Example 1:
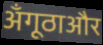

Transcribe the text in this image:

अँगूठाऔर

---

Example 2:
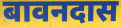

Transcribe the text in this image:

बावनदास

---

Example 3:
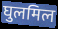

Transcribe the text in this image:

घुलमिल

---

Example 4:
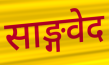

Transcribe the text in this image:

साङ्गवेद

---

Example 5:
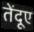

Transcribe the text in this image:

तेंदूए